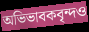
অভিভাবকবৃন্দও